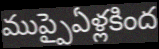
ముప్పైఏళ్లకింద